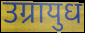
उग्रायुध